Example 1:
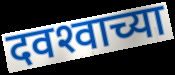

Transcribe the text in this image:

दवश्वाच्या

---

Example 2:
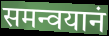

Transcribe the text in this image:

समन्वयानं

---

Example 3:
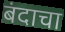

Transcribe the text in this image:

बंदाचा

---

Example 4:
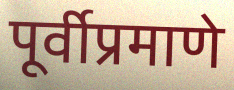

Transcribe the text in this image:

पूर्वीप्रमाणे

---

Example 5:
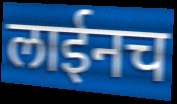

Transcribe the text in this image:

लाईनच